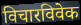
विचारविवेक